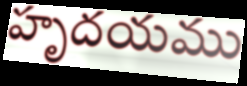
హృదయము